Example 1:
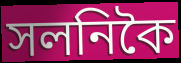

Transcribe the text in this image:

সলনিকৈ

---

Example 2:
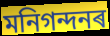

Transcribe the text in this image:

মনিগন্দনৰ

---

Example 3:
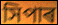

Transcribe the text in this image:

সিপাৰ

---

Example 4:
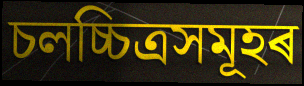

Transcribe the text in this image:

চলচ্চিত্ৰসমূহৰ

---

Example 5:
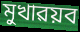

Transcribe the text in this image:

মুখাৱয়ব